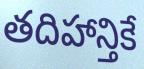
తదిహాన్తికే